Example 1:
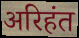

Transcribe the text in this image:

अरिहंत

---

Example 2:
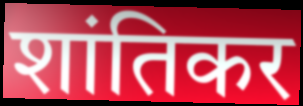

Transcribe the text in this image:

शांतिकर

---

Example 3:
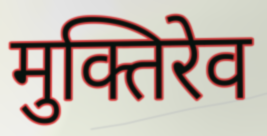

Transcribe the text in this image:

मुक्तिरेव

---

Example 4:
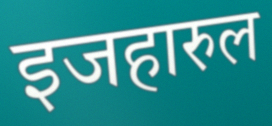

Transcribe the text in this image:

इजहारुल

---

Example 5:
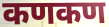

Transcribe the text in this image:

कणकण